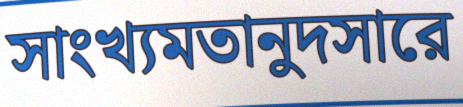
সাংখ্যমতানুদসারে